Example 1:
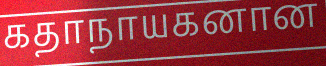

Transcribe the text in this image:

கதாநாயகனான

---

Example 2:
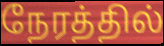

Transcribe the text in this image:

நேரத்தில்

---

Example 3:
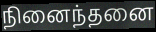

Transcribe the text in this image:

நினைந்தனை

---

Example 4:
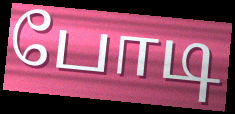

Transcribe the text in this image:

போடி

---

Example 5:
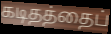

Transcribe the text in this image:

கடிதத்தைப்